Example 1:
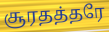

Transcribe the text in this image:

சூரதத்தரே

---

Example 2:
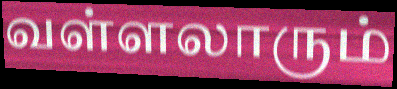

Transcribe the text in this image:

வள்ளலாரும்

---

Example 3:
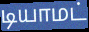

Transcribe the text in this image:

டியாமட்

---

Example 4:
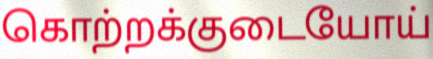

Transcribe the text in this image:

கொற்றக்குடையோய்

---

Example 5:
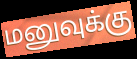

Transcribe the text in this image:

மனுவுக்கு